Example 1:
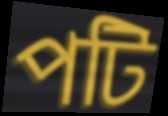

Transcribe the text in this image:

পটি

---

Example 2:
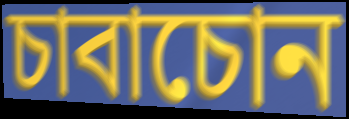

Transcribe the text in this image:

চাবাচোন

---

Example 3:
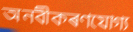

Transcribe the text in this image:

অনবীকৰণযোগ্য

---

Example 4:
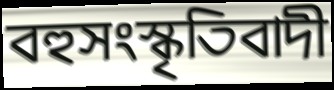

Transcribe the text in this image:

বহুসংস্কৃতিবাদী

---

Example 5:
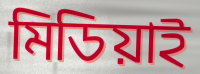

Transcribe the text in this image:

মিডিয়াই